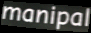
manipal